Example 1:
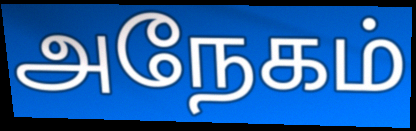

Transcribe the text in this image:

அநேகம்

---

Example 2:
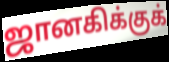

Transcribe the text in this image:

ஜானகிக்குக்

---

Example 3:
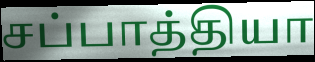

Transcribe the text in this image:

சப்பாத்தியா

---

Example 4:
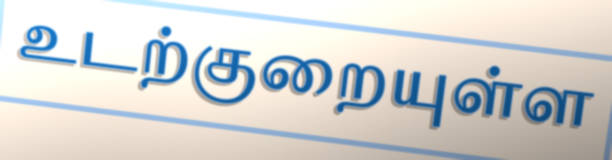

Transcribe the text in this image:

உடற்குறையுள்ள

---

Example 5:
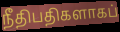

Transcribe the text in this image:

நீதிபதிகளாகப்